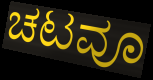
ಚಟವೂ